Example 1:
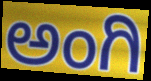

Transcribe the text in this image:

ಅಂಗಿ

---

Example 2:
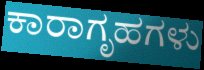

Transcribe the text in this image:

ಕಾರಾಗೃಹಗಳು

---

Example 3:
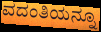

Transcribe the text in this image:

ವದಂತಿಯನ್ನೂ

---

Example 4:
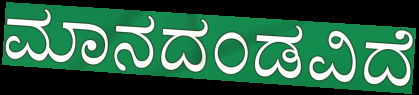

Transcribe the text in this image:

ಮಾನದಂಡವಿದೆ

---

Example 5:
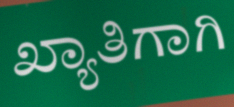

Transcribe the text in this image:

ಖ್ಯಾತಿಗಾಗಿ